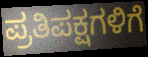
ಪ್ರತಿಪಕ್ಷಗಳಿಗೆ